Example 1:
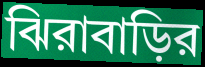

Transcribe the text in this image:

ঝিরাবাড়ির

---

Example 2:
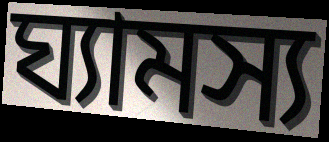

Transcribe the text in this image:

ঘ্যামস্য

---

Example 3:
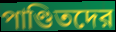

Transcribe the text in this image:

পাণ্ডিতদের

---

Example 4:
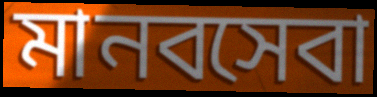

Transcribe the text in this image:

মানবসেবা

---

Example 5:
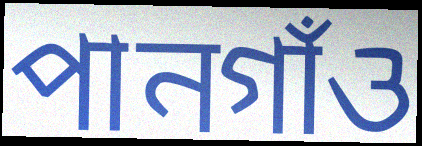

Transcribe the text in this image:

পানগাঁও